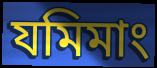
যমিমাং